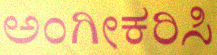
ಅಂಗೀಕರಿಸಿ